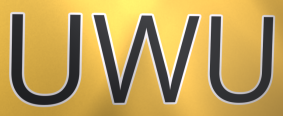
UWU